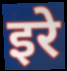
इरे